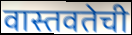
वास्तवतेची